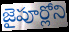
జైపూర్లోని